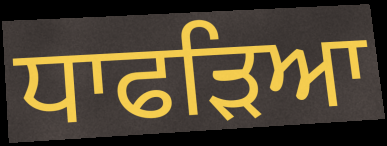
ਧਾਫੜਿਆ